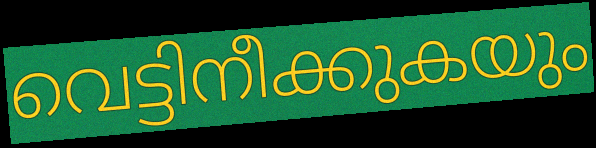
വെട്ടിനീക്കുകയും